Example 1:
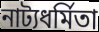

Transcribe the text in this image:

নাট্যধর্মিতা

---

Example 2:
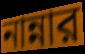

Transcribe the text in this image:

নান্নার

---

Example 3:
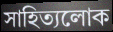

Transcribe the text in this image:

সাহিত্যলোক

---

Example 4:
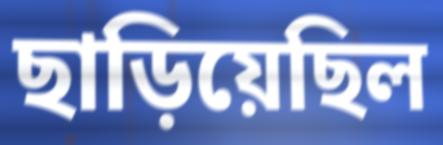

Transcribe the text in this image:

ছাড়িয়েছিল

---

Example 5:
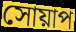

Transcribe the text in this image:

সোয়াপ